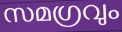
സമഗ്രവും